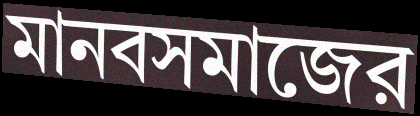
মানবসমাজের